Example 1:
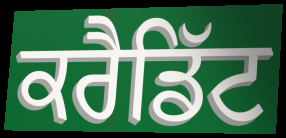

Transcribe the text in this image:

ਕਰੈਡਿੱਟ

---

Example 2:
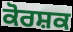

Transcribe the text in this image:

ਕੋਰਸ਼ਕ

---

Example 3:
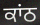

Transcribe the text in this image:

ਕਾਂਠ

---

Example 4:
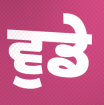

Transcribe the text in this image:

ਵੁਡੇ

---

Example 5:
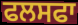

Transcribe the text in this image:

ਫਲਸਫਾ